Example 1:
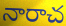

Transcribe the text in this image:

నారాచ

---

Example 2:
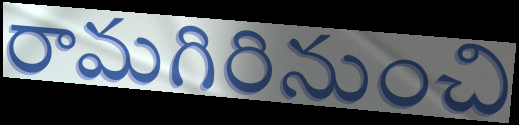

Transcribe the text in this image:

రామగిరినుంచి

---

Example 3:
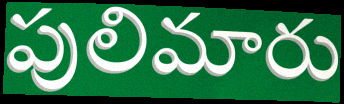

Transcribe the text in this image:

పులిమారు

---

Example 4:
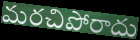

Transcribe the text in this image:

మరచిపోరాదు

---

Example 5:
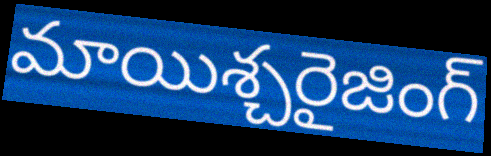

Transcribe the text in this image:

మాయిశ్చరైజింగ్